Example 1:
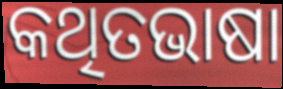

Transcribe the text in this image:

କଥିତଭାଷା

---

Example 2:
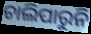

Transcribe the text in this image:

ଚାଲିପାରୁନି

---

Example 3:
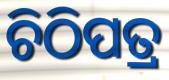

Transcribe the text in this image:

ଚିଠିପତ୍ର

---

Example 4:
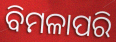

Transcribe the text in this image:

ବିମଳାପରି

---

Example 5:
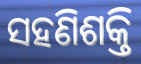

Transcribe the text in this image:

ସହଣିଶକ୍ତି